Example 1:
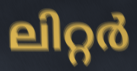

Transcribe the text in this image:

ലിറ്റർ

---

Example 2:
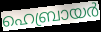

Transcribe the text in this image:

ഹെബ്രായർ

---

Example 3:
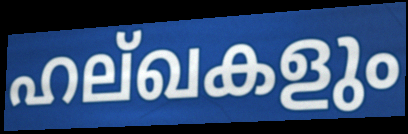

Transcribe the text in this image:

ഹല്ഖകളും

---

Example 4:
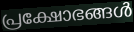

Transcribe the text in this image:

പ്രക്ഷോഭങ്ങൾ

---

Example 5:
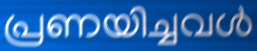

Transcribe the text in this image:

പ്രണയിച്ചവൾ